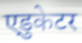
एडुकेटर